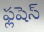
ఫ్లషెస్